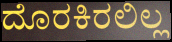
ದೊರಕಿರಲಿಲ್ಲ